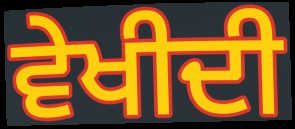
ਵੇਖੀਦੀ